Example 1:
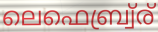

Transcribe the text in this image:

ലെഫെബ്ര്വ്ര്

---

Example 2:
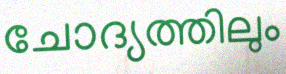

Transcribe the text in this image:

ചോദ്യത്തിലും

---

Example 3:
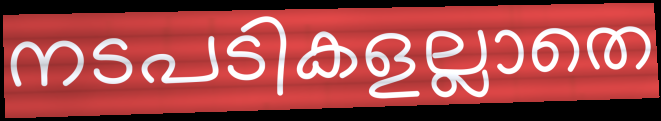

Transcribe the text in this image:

നടപടികളല്ലാതെ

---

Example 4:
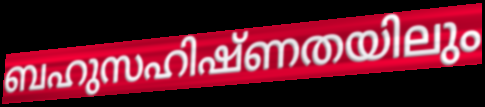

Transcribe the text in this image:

ബഹുസഹിഷ്ണതയിലും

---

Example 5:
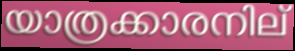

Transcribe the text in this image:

യാത്രക്കാരനില്